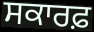
ਸਕਾਰਫ਼